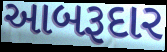
આબરૂદાર